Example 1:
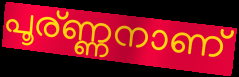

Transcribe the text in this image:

പൂര്ണ്ണനാണ്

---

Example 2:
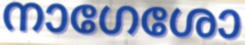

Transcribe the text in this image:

നാഗേശോ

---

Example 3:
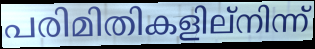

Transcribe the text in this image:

പരിമിതികളില്നിന്ന്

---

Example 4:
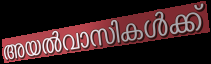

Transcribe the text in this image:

അയൽവാസികൾക്ക്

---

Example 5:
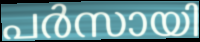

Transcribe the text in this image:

പർസായി